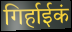
गिर्हाईकं